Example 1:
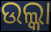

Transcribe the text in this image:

ଉଲ୍କା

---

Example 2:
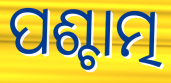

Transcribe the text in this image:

ପଶ୍ଚାତ୍ମ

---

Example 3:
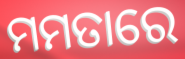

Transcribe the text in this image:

ମମତାରେ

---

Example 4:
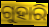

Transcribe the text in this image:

ଗୁହାରି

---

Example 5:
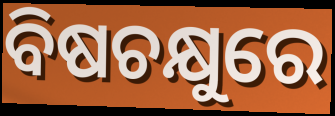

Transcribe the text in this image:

ବିଷଚକ୍ଷୁରେ